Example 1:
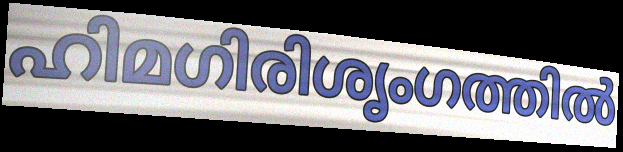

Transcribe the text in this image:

ഹിമഗിരിശൃംഗത്തിൽ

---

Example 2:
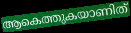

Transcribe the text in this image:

ആകെത്തുകയാണിത്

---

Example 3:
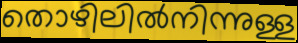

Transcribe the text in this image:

തൊഴിലിൽനിന്നുള്ള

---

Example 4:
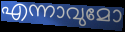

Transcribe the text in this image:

എന്നാവുമോ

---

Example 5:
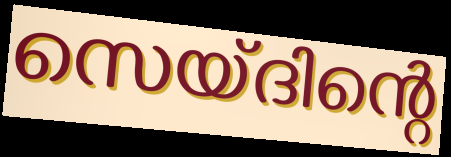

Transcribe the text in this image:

സെയ്ദിന്റെ